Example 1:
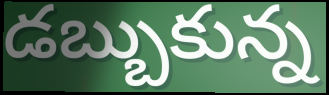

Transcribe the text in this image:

డబ్బుకున్న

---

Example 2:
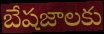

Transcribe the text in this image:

బేషజాలకు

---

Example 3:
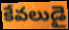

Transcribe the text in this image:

కేవలుడై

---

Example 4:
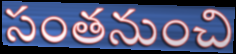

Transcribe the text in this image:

సంతనుంచి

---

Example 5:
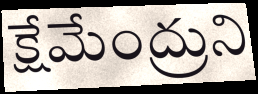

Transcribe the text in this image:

క్షేమేంద్రుని